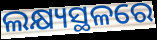
ଲକ୍ଷ୍ୟସ୍ଥଳରେ